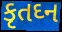
કૃતઘ્ન